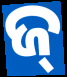
ଜ୍